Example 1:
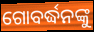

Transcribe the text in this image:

ଗୋବର୍ଦ୍ଧନଙ୍କୁ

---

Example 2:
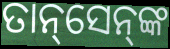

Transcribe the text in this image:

ତାନ୍‌ସେନ୍‌ଙ୍କ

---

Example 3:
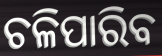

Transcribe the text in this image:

ଚଳିପାରିବ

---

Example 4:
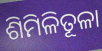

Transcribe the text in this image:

ଶିମିଳିତୂଳା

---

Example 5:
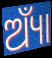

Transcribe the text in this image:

ଅ୍ୟାଁ